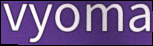
vyoma